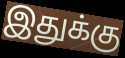
இதுக்கு